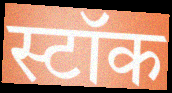
स्टॉक